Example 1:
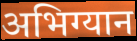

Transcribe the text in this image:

अभिग्यान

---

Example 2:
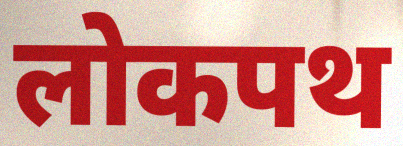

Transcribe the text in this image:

लोकपथ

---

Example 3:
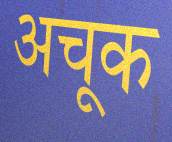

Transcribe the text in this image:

अचूक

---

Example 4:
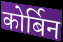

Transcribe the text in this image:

कोर्बिन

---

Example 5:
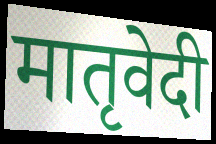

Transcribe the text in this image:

मातृवेदी